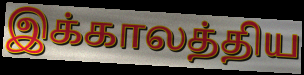
இக்காலத்திய